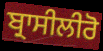
ਬ੍ਰਾਸੀਲੀਰੋ